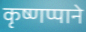
कृष्णप्पाने